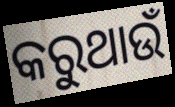
କରୁଥାଉଁ